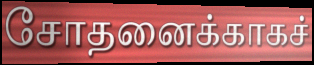
சோதனைக்காகச்